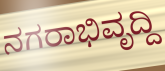
ನಗರಾಭಿವೃದ್ದಿ